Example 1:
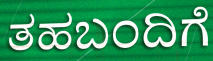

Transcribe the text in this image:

ತಹಬಂದಿಗೆ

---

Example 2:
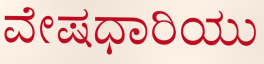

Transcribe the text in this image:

ವೇಷಧಾರಿಯು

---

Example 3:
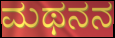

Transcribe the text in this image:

ಮಥನನ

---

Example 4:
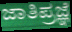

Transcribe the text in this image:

ಜಾತಿಪ್ರಜ್ಞೆ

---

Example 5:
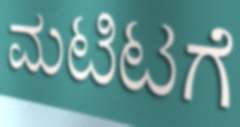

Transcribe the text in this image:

ಮಟಿಟಗೆ